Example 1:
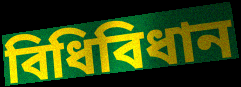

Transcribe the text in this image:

বিধিবিধান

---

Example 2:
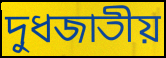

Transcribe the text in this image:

দুধজাতীয়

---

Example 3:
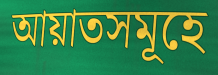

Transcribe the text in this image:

আয়াতসমূহে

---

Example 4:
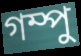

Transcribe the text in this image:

গম্পু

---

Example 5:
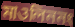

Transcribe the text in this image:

মাওলিননং